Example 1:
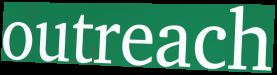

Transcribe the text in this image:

outreach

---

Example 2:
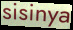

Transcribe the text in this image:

sisinya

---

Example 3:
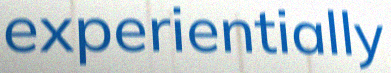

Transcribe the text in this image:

experientially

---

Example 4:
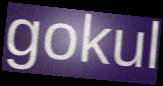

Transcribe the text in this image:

gokul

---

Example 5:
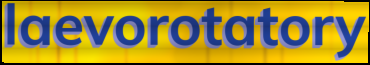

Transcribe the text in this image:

laevorotatory